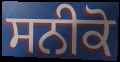
ਸਨੀਕੋ